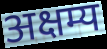
अक्षम्य